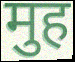
मुह